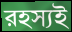
রহস্যই